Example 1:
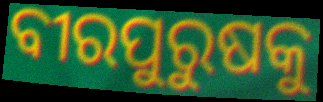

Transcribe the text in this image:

ବୀରପୁରୁଷକୁ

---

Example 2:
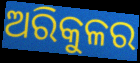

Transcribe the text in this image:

ଅରିକୁଳର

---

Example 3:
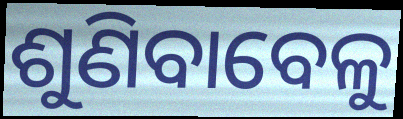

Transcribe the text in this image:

ଶୁଣିବାବେଳୁ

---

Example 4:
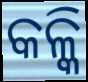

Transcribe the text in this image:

କଳ୍କି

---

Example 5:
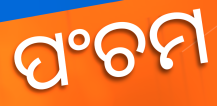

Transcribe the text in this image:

ପଂଚମ